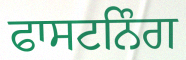
ਫਾਸਟਨਿੰਗ